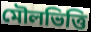
মৌলভিত্তি